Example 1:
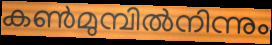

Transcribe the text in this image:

കൺമുമ്പിൽനിന്നും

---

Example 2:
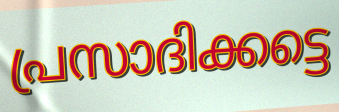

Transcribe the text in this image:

പ്രസാദിക്കട്ടെ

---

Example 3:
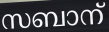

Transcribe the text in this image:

സബാന്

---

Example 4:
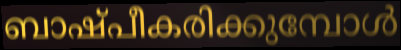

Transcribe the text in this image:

ബാഷ്പീകരിക്കുമ്പോൾ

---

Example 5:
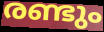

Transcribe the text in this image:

രണ്ടും